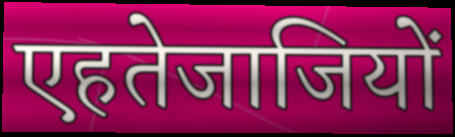
एहतेजाजियों